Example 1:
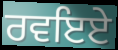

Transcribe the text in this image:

ਰਵਇਏ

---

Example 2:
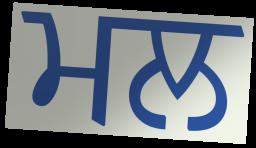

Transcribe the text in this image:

ਮਲ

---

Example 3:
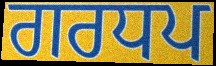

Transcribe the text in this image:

ਗਰਧਪ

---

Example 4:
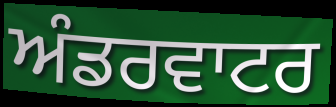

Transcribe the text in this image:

ਅੰਡਰਵਾਟਰ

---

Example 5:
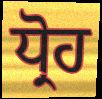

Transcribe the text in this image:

ਧ੍ਰੋਹ